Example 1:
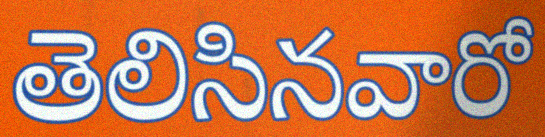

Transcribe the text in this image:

తెలిసినవారో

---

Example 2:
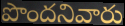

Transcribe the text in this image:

పొందనివారు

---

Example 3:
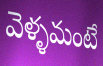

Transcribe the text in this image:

వెళ్ళమంటే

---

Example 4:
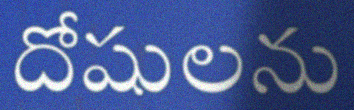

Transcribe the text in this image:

దోషులను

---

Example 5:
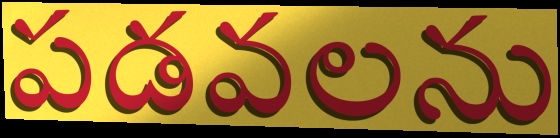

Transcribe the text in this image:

పడవలను